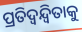
ପ୍ରତିଦ୍ୱନ୍ଦ୍ୱିତାକୁ